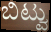
ಬಿಟ್ವು